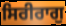
ਸਿਰੀਰਾਗੁ